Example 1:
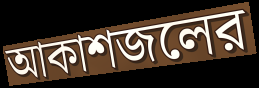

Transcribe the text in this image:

আকাশজলের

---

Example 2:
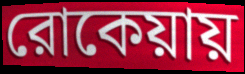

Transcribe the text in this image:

রোকেয়ায়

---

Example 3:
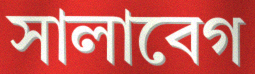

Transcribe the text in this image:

সালাবেগ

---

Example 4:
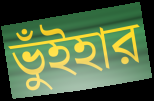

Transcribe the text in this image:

ভুঁইহার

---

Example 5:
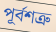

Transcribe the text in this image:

পূর্বশত্রু